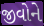
જીવોને